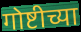
गोष्टीच्या